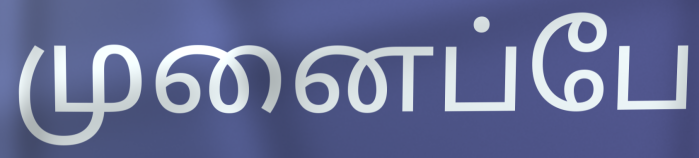
முனைப்பே